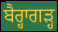
ਬੈਰ੍ਹਾਗੜ੍ਹ